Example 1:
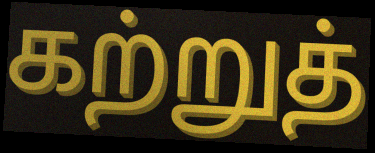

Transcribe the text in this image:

கற்றுத்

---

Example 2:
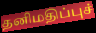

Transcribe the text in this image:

தனிமதிப்புச்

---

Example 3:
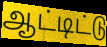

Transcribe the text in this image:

ஆட்டிட்டு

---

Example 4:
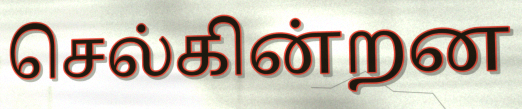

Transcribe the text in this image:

செல்கின்றன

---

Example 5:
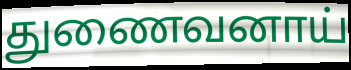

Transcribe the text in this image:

துணைவனாய்